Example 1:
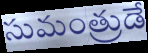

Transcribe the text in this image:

సుమంత్రుడే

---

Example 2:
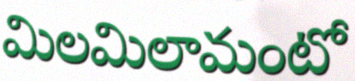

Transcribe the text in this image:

మిలమిలామంటో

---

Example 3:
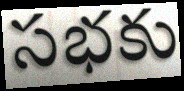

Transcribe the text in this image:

సభకు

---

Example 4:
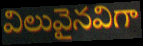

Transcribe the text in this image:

విలువైనవిగా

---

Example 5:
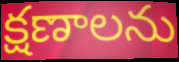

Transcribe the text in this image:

క్షణాలను